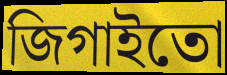
জিগাইতো